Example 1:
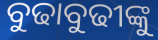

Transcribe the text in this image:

ବୁଢାବୁଢୀଙ୍କୁ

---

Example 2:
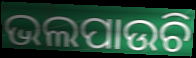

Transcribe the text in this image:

ଭଲପାଉଚି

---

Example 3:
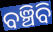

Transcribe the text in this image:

ବଞ୍ଚିବି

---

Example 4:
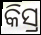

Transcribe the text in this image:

କିସ୍ର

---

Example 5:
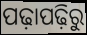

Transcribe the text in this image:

ପଢ଼ାପଢ଼ିରୁ